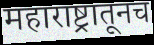
महाराष्ट्रातूनच